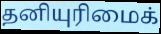
தனியுரிமைக்